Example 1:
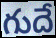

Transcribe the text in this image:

గుదే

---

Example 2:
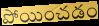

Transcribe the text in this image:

పోయించడం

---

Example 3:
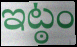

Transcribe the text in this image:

ఇట్ఠం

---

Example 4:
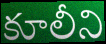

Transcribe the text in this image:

కూలీని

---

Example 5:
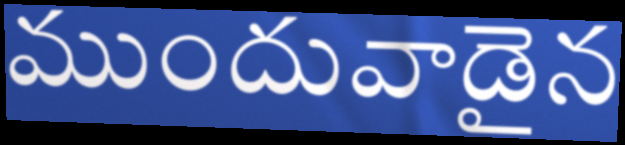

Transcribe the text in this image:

ముందువాడైన